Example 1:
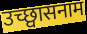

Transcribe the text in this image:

उच्छ्वासनाम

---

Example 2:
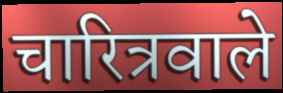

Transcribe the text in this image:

चारित्रवाले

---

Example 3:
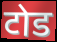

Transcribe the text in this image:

टोड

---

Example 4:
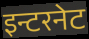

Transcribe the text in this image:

इन्‍टरनेट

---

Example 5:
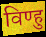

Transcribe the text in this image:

विण्हु